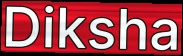
Diksha